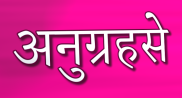
अनुग्रहसे